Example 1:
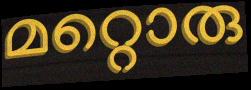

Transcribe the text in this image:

മറ്റൊരു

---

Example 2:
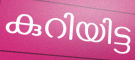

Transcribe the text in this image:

കുറിയിട്ട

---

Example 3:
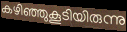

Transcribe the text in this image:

കഴിഞ്ഞുകൂടിയിരുന്നു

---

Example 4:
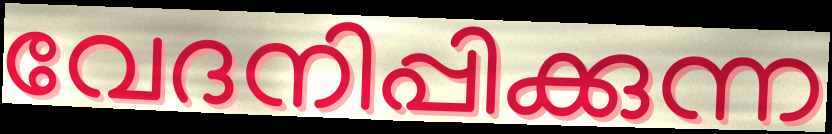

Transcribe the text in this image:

വേദനിപ്പിക്കുന്ന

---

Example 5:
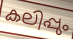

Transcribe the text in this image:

കലിപ്പും